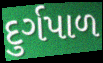
દુર્ગપાળ